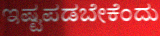
ಇಷ್ಟಪಡಬೇಕೆಂದು